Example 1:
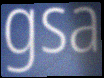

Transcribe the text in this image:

gsa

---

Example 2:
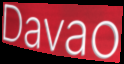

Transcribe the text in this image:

Davao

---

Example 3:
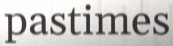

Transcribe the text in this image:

pastimes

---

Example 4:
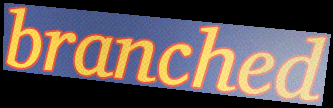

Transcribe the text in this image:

branched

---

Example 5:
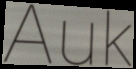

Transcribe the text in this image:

Auk